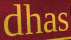
dhas